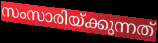
സംസാരിയ്ക്കുന്നത്